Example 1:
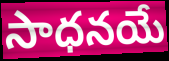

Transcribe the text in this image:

సాధనయే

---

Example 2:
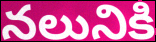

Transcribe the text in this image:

నలునికి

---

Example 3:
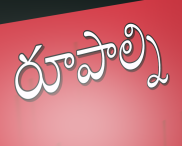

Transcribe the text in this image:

రూపాల్ని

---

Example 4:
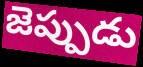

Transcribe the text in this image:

జెప్పుడు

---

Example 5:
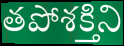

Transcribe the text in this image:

తపోశక్తిని